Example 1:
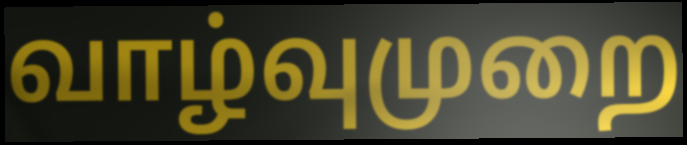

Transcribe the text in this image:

வாழ்வுமுறை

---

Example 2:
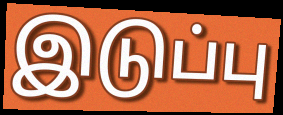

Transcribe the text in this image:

இடுப்பு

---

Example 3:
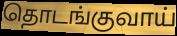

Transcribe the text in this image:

தொடங்குவாய்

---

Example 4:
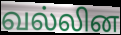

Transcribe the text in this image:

வல்லின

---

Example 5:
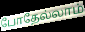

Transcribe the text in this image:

போதேல்லாம்